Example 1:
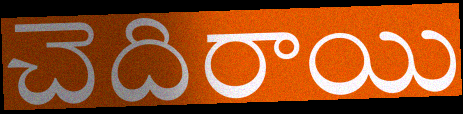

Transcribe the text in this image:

చెదిరాయి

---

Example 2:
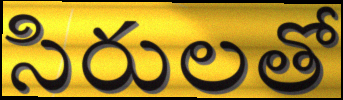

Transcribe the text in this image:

సిరులతో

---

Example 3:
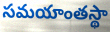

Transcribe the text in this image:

సమయాంతస్థా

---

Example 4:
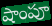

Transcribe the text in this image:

షాంపూ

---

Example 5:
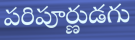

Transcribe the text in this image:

పరిపూర్ణుడగు